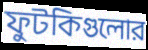
ফুটকিগুলোর